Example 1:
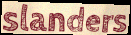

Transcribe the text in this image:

slanders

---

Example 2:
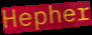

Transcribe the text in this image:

Hepher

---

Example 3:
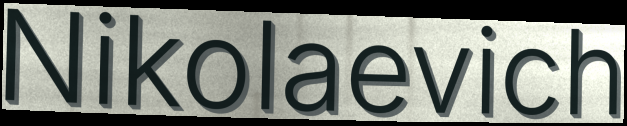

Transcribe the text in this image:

Nikolaevich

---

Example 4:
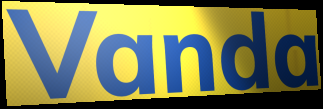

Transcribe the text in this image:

Vanda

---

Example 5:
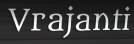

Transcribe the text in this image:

Vrajanti